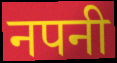
नपनी